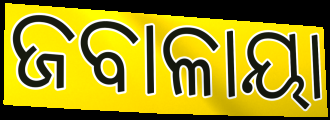
ଜବାଳାୟା